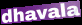
dhavala